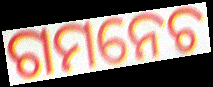
ଗମନେଚ